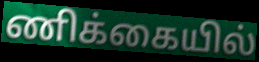
ணிக்கையில்